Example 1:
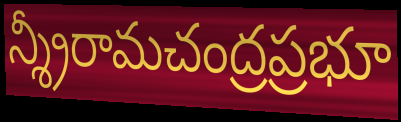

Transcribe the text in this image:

న్శ్రీరామచంద్రప్రభూ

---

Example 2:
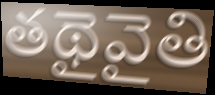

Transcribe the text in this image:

తథైవైతి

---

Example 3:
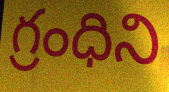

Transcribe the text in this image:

గ్రంధిని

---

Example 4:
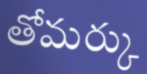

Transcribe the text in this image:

తోమర్కు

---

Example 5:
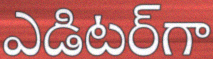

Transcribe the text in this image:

ఎడిటర్‌గా